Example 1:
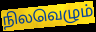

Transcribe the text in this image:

நிலவெழும்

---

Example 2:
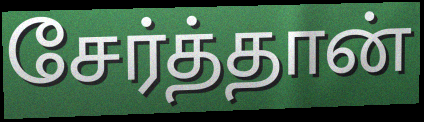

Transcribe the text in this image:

சேர்த்தான்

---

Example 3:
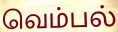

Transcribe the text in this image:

வெம்பல்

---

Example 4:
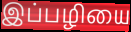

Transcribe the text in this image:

இப்பழியை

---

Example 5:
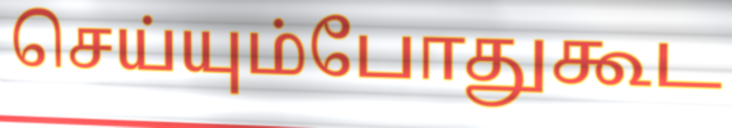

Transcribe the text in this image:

செய்யும்போதுகூட